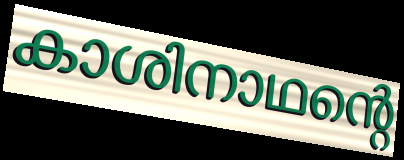
കാശിനാഥന്റെ